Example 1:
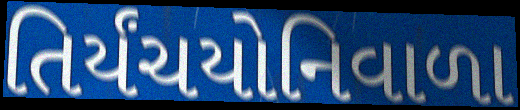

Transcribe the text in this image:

તિર્યંચયોનિવાળા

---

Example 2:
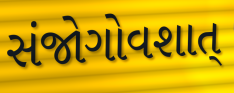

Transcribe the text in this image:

સંજોગોવશાત્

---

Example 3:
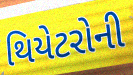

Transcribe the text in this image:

થિયેટરોની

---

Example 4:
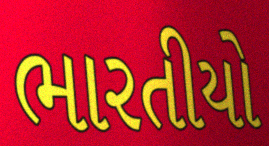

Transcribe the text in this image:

ભારતીયો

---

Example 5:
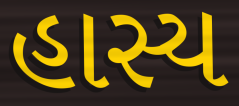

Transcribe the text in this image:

હાસ્ય